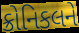
ક્રોનિકલને